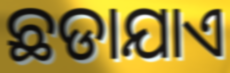
ଛଡାଯାଏ